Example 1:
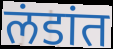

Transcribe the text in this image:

लंडांत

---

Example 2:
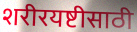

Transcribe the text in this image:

शरीरयष्टीसाठी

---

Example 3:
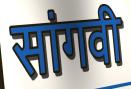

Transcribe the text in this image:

सांगवी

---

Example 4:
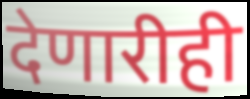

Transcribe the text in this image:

देणारीही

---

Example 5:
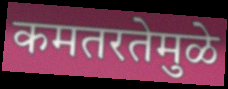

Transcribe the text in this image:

कमतरतेमुळे